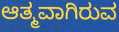
ಆತ್ಮವಾಗಿರುವ